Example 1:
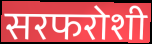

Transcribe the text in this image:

सरफरोशी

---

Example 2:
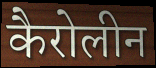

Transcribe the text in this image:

कैरोलीन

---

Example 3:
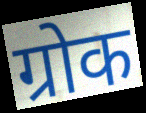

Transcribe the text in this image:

ग्रोक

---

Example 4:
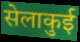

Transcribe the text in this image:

सेलाकुई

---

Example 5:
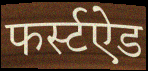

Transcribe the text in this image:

फर्स्टऐड